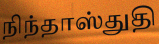
நிந்தாஸ்துதி